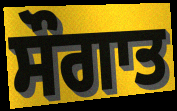
ਸੌਗਾਤ